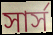
সার্স